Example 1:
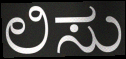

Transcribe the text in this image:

ಲಿಸು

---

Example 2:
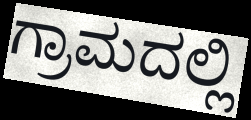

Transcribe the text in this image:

ಗ್ರಾಮದಲ್ಲಿ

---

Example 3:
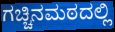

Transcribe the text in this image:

ಗಚ್ಚಿನಮಠದಲ್ಲಿ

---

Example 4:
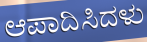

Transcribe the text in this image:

ಆಪಾದಿಸಿದಳು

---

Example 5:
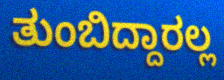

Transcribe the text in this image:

ತುಂಬಿದ್ದಾರಲ್ಲ